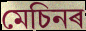
মেচিনৰ